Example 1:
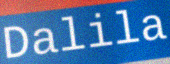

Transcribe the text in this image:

Dalila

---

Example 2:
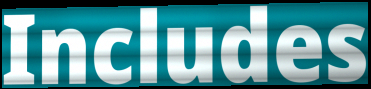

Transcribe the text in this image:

Includes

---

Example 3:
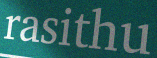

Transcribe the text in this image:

rasithu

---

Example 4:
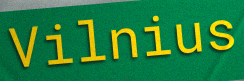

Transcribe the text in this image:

Vilnius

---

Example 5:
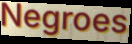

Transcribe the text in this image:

Negroes